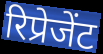
रिप्रेजेंट